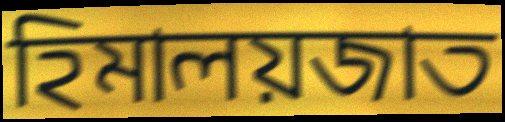
হিমালয়জাত